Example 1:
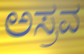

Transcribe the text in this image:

ಅಸ್ರವ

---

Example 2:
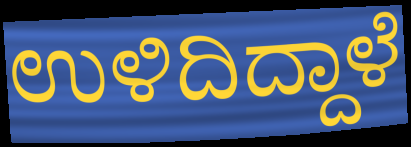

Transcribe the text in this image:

ಉಳಿದಿದ್ದಾಳೆ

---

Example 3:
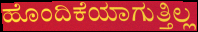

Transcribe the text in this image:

ಹೊಂದಿಕೆಯಾಗುತ್ತಿಲ್ಲ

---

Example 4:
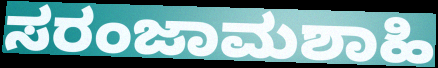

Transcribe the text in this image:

ಸರಂಜಾಮಶಾಹಿ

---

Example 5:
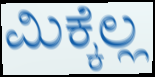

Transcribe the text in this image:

ಮಿಕ್ಕೆಲ್ಲ